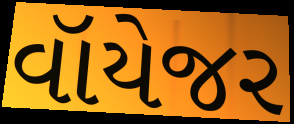
વૉયેજર